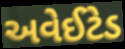
અવેઈટેડ